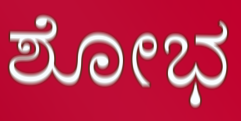
ಶೋಭ